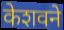
केशवने